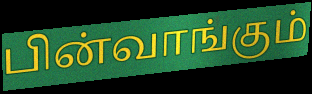
பின்வாங்கும்